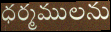
ధర్మములను